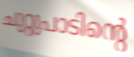
ചുറ്റുപാടിന്റെ